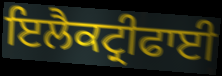
ਇਲੈਕਟ੍ਰੀਫਾਈ